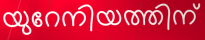
യുറേനിയത്തിന്